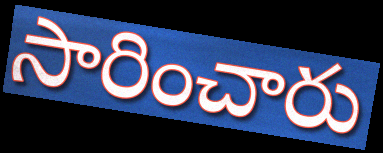
సారించారు